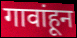
गावांहून